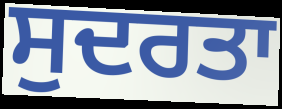
ਸੁਦਰਤਾ